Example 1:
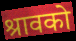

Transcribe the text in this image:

श्रावको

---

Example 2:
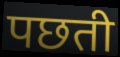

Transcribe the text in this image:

पछती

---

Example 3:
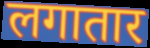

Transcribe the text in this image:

लगातार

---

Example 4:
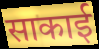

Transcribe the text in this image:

साकाई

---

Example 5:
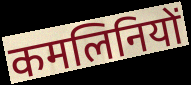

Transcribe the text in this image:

कमलिनियों